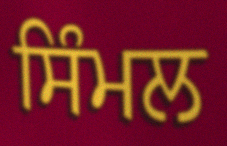
ਸਿੰਮਲ